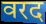
वरद